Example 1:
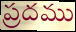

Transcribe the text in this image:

ప్రదము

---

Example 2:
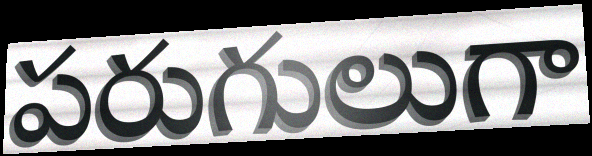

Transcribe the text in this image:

పరుగులుగా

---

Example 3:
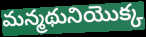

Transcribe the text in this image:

మన్మథునియొక్క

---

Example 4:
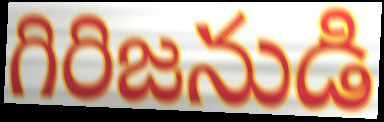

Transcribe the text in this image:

గిరిజనుడి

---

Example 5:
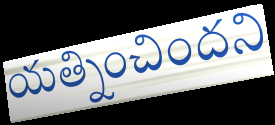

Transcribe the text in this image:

యత్నించిందని